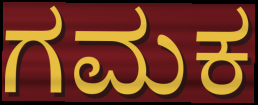
ಗಮಕ